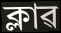
ক্লাৱ